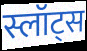
स्लॉट्स